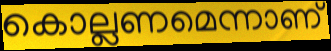
കൊല്ലണമെന്നാണ്